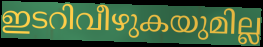
ഇടറിവീഴുകയുമില്ല